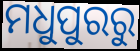
ମଧୁପୁରରୁ